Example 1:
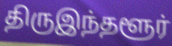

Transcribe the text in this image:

திருஇந்தளூர்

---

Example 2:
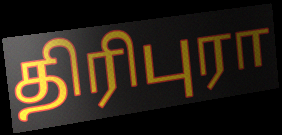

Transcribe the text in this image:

திரிபுரா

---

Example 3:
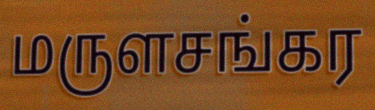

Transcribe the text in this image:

மருளசங்கர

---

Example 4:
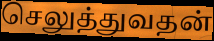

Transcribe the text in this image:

செலுத்துவதன்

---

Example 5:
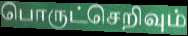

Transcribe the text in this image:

பொருட்செறிவும்